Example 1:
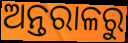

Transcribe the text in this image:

ଅନ୍ତରାଳରୁ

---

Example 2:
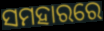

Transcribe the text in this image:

ସମହାରରେ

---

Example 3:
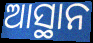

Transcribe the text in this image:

ଆସ୍ଥାନ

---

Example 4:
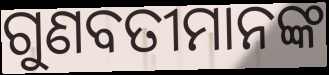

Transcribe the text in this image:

ଗୁଣବତୀମାନଙ୍କ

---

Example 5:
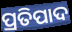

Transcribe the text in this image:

ପ୍ରତିପାଦ